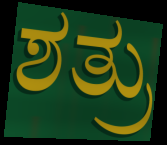
ಶತ್ರು